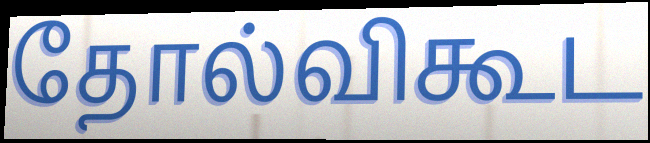
தோல்விகூட